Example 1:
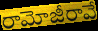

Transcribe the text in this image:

రామోజీరావే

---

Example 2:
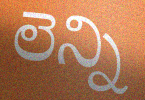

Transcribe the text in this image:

లెన్ని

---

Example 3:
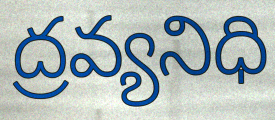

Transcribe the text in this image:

ద్రవ్యనిధి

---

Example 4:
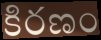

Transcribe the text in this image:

కిరణం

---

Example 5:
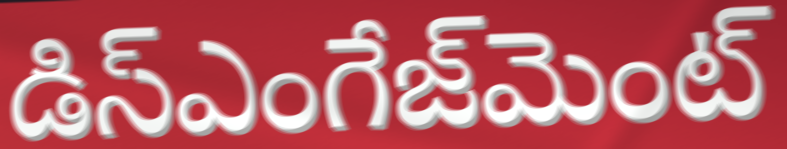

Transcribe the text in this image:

డిస్ఎంగేజ్‌మెంట్